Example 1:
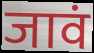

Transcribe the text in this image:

जावं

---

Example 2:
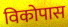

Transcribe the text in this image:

विकोपास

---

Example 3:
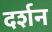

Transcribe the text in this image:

दर्शन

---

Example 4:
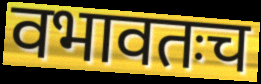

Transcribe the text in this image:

वभावतःच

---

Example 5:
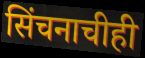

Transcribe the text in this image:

सिंचनाचीही